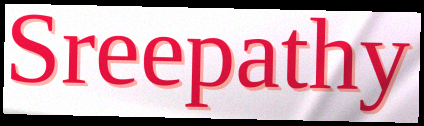
Sreepathy